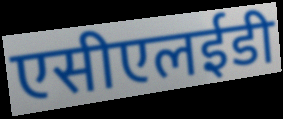
एसीएलईडी